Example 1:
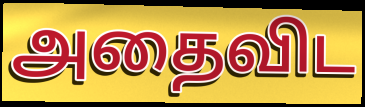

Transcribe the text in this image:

அதைவிட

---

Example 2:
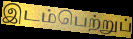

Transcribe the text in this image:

இடம்பெற்றுப்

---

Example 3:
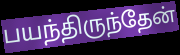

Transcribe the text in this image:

பயந்திருந்தேன்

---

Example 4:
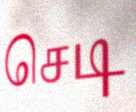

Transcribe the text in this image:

செடி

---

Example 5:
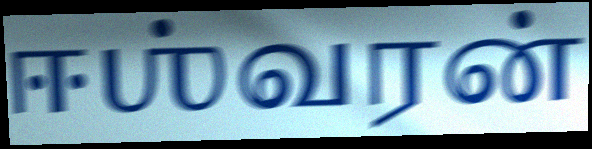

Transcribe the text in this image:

ஈஶ்வரன்